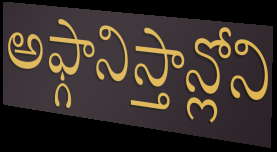
అఫ్గానిస్తాన్లోని